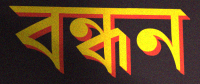
বন্ধন